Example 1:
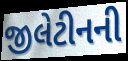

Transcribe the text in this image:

જીલેટીનની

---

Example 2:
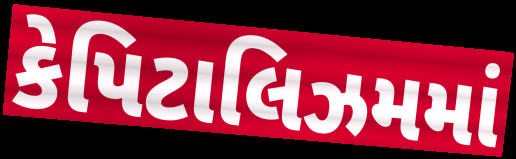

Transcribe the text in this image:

કેપિટાલિઝમમાં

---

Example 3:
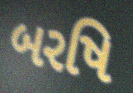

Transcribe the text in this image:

બરષિ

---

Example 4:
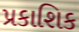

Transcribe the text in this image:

પ્રકાશિક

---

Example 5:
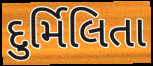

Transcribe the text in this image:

દુર્મિલિતા